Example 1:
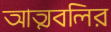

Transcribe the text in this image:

আত্মবলির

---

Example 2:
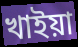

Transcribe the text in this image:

খাইয়া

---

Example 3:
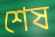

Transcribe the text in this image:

শেষ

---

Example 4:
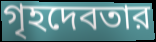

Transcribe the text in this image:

গৃহদেবতার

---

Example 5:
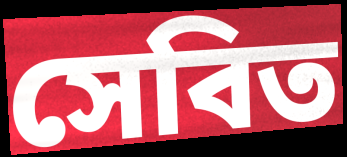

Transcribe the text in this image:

সেবিত